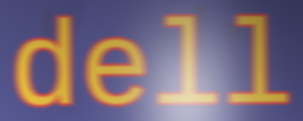
dell